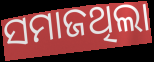
ସମାଜଥିଲା